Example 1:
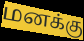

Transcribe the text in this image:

மனக்கு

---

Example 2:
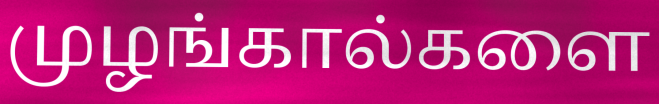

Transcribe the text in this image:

முழங்கால்களை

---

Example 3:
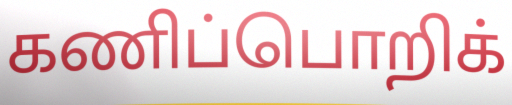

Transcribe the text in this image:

கணிப்பொறிக்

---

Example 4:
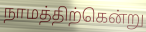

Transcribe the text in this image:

நாமத்திற்கென்று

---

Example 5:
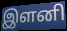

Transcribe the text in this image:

இளனி